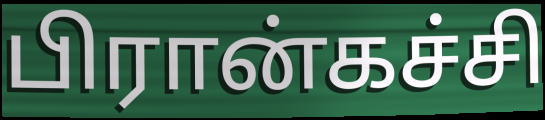
பிரான்கச்சி